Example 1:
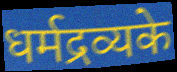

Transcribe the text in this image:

धर्मद्रव्यके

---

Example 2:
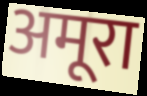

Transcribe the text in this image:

अमूरा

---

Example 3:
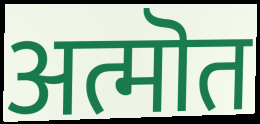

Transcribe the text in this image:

अत्मॊत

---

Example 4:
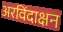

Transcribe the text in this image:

अरविंदाक्षन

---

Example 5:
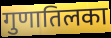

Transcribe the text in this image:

गुणातिलका